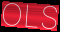
OLS